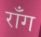
रॉंग